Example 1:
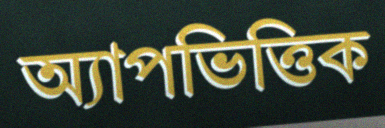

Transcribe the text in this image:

অ্যাপভিত্তিক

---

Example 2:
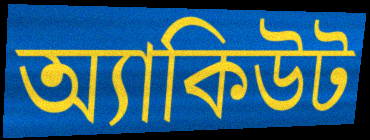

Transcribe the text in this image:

অ্যাকিউট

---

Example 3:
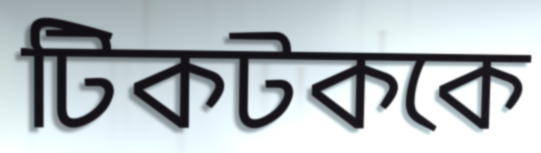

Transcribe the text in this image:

টিকটককে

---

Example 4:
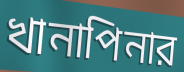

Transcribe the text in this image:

খানাপিনার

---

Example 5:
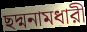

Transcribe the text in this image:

ছদ্মনামধারী